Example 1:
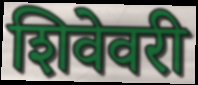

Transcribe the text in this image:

शिवेवरी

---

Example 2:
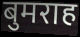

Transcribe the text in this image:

बुमराह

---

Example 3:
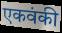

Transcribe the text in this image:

एकवंकी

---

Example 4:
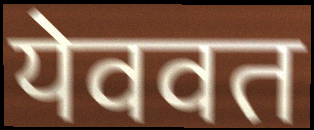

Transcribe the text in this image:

येववत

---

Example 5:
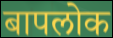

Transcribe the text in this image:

बापलोक